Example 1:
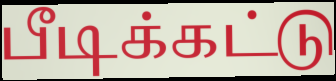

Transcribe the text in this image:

பீடிக்கட்டு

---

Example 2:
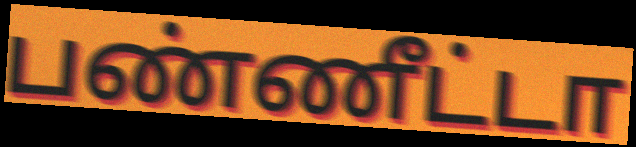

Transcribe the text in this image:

பண்ணீட்டா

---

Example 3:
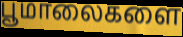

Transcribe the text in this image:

பூமாலைகளை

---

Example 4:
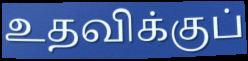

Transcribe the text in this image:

உதவிக்குப்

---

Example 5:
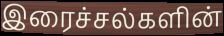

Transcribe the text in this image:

இரைச்சல்களின்